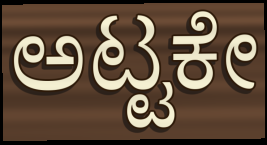
ಅಟ್ಟಕೇ